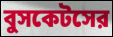
বুসকেটসের